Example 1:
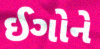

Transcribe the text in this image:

ઈગોને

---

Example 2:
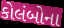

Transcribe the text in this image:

કોલંબોના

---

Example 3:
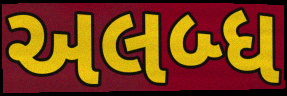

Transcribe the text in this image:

અલબ્ધ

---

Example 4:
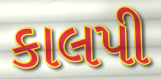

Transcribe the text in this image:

કાલપી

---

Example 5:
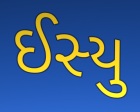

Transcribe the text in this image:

ઈસ્યુ